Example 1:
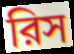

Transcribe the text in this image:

রিস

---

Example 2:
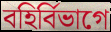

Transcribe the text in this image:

বহির্বিভাগে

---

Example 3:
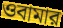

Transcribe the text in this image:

ওবামার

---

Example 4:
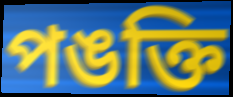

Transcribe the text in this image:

পঙক্তি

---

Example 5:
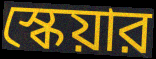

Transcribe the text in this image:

স্কেয়ার